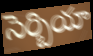
సెర్బియా